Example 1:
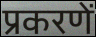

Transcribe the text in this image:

प्रकरणें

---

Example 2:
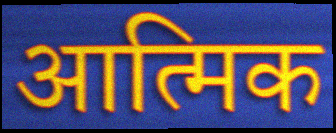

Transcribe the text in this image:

आत्मिक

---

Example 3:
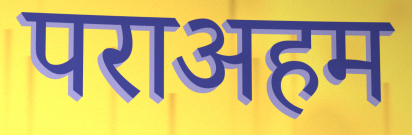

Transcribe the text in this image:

पराअहम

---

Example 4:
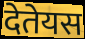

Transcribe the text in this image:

देतेयस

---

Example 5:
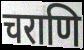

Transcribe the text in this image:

चराणि